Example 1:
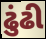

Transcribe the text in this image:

ઢુંઢી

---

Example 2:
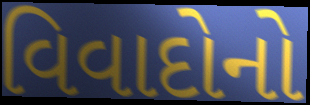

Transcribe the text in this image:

વિવાદોનો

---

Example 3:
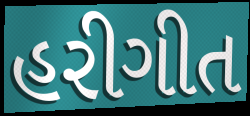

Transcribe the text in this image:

હરીગીત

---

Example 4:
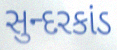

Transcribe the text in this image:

સુન્દરકાંડ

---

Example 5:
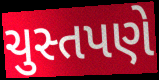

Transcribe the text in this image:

ચુસ્તપણે